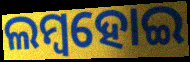
ଲମ୍ୱହୋଇ